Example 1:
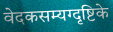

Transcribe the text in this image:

वेदकसम्यग्दृष्टिके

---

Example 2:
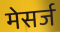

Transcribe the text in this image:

मेसर्ज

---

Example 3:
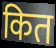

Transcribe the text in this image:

कित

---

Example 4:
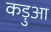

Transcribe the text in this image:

कड़ुआ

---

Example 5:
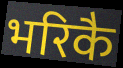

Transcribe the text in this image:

भरिकै